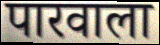
पारवाला